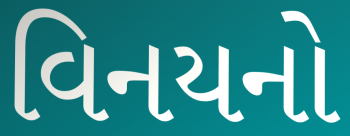
વિનયનો